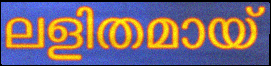
ലളിതമായ്